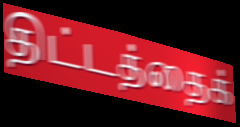
திட்டத்தைக்